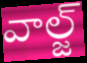
వాల్జ్